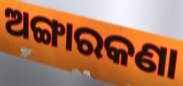
ଅଙ୍ଗାରକଣା